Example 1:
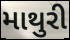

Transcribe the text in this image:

માથુરી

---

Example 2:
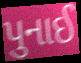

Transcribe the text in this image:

પુનાઈ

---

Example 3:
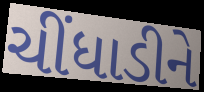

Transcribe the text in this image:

ચીંધાડીને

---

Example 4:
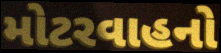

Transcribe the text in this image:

મોટરવાહનો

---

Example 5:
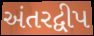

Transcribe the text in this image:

અંતરદ્વીપ